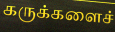
கருக்களைச்